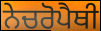
ਨੇਚਰੋਪੈਥੀ